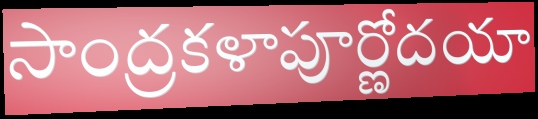
సాంద్రకళాపూర్ణోదయా